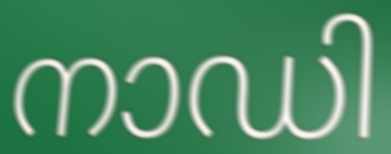
നാഡി